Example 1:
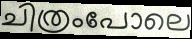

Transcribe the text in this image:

ചിത്രംപോലെ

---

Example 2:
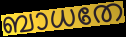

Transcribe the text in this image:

ബാധതേ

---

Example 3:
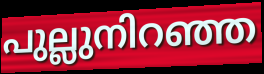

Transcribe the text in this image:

പുല്ലുനിറഞ്ഞ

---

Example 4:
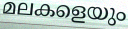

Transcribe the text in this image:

മലകളെയും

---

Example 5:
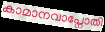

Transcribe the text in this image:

കാമാനവാപ്നോതി